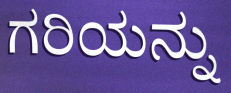
ಗರಿಯನ್ನು